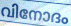
വിനോദം